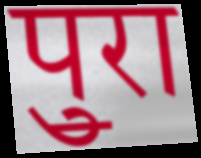
पु॒रा